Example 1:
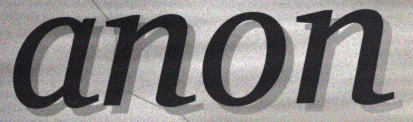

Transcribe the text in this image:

anon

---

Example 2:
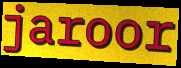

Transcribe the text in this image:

jaroor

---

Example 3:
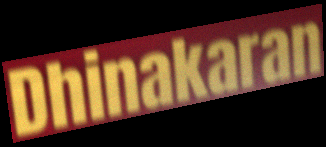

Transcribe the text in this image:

Dhinakaran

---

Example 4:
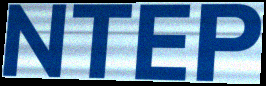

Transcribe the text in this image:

NTEP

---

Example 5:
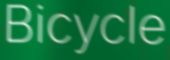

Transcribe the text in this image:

Bicycle